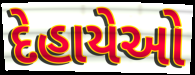
દેહાયેઓ